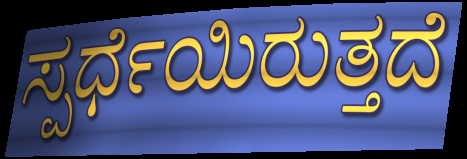
ಸ್ಪರ್ಧೆಯಿರುತ್ತದೆ